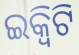
ଇକ୍ବିଟି